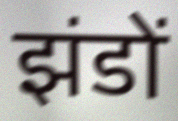
झंडों